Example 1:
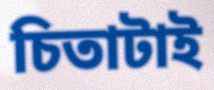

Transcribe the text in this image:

চিতাটাই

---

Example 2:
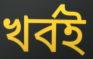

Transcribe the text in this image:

খর্বই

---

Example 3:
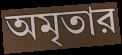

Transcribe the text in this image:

অমৃতার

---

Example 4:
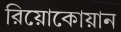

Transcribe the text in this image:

রিয়োকোয়ান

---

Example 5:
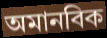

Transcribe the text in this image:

অমানবিক